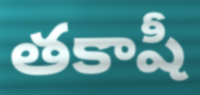
తకాషీ